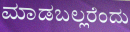
ಮಾಡಬಲ್ಲರೆಂದು